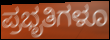
ಪ್ರಭೃತಿಗಳೂ